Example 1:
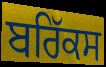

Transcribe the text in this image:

ਬਰਿੱਕਸ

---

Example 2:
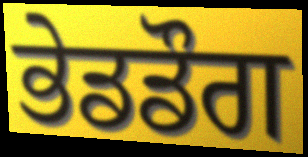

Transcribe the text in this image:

ਭੇਡਡੌਗ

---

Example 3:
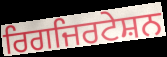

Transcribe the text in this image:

ਰਿਗਜਿਰਟੇਸ਼ਨ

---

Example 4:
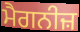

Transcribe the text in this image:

ਮੈਗਨੀਜ਼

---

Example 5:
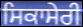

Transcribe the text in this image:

ਸਿਕਾਸੇਰੀ